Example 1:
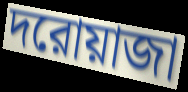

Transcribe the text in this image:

দরোয়াজা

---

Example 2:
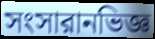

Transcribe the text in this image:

সংসারানভিজ্ঞ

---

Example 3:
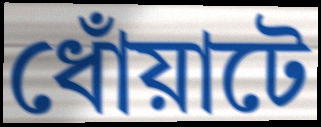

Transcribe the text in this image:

ধোঁয়াটে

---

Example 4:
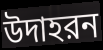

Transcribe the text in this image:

উদাহরন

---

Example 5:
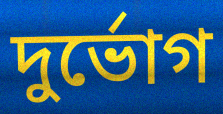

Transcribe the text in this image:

দুর্ভোগ